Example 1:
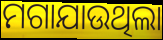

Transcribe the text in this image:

ମଗାଯାଉଥିଲା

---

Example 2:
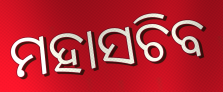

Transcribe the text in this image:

ମହାସଚିବ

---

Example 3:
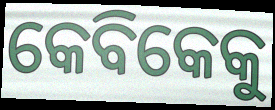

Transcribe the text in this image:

କେବିକେକୁ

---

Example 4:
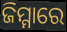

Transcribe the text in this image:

ଜିମ୍ମାରେ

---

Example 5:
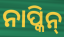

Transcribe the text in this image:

ନାପ୍କିନ୍